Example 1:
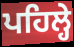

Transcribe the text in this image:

ਪਹਿਲ੍ਹੇ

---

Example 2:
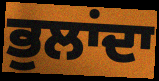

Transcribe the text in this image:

ਭੁਲਾਂਦਾ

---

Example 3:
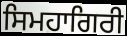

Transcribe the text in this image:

ਸਿਮਹਾਗਿਰੀ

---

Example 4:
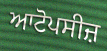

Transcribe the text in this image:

ਆਟੋਪਸੀਜ਼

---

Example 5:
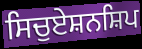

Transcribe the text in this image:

ਸਿਚੁਏਸ਼ਨਸ਼ਿਪ